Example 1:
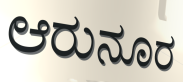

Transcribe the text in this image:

ಆರುನೂರ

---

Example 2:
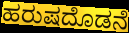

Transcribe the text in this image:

ಹರುಷದೊಡನೆ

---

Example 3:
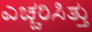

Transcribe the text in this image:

ಎಚ್ಚರಿಸಿತ್ತು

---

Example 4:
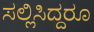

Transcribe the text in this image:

ಸಲ್ಲಿಸಿದ್ದರೂ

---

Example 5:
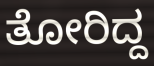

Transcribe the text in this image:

ತೋರಿದ್ದ